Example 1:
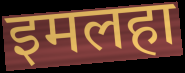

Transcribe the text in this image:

इमलहा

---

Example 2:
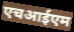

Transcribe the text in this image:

एचआईएम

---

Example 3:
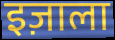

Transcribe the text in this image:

इज़ाला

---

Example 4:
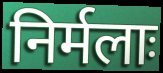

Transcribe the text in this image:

निर्मलाः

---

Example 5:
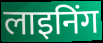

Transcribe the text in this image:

लाइनिंग